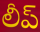
లీప్